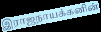
இராஜநாயக்கனின்